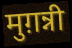
मुग़न्नी